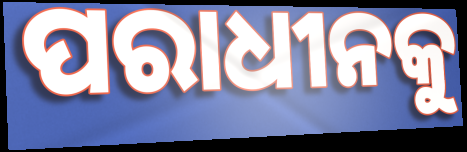
ପରାଧୀନକୁ